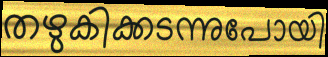
തഴുകിക്കടന്നുപോയി